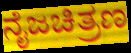
ನೈಜಚಿತ್ರಣ